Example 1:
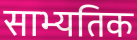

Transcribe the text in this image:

साभ्यतिक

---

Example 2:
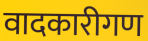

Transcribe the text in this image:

वादकारीगण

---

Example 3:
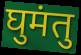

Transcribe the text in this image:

घुमंतु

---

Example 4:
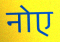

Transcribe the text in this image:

नोए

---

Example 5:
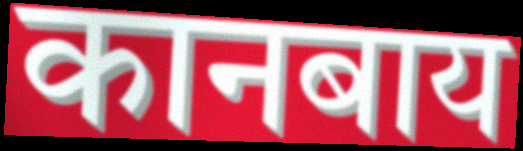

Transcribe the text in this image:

कानबाय